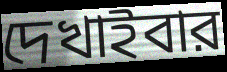
দেখাইবার